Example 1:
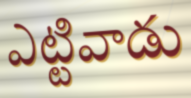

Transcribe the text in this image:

ఎట్టివాడు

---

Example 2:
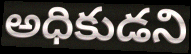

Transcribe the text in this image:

అధికుడని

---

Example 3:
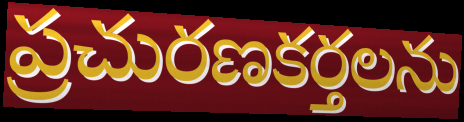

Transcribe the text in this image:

ప్రచురణకర్తలను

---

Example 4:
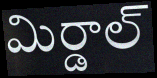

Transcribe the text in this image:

మిర్డాల్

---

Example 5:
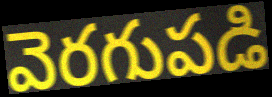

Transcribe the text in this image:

వెరగుపడి